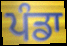
ਪੰਡਾ